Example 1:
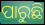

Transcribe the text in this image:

ପାରୁଛି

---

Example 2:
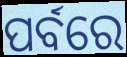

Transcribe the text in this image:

ପର୍ବରେ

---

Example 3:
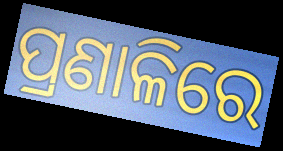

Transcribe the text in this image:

ପ୍ରଣାଳିରେ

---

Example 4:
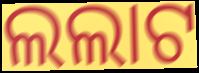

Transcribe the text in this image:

ଲଲାଟ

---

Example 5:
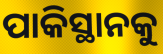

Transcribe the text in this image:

ପାକିସ୍ଥାନକୁ